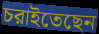
চরাইতেছেন